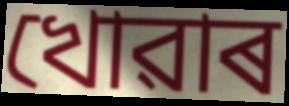
খোৱাৰ